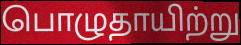
பொழுதாயிற்று